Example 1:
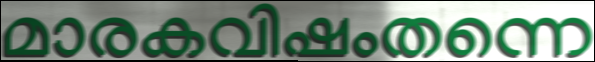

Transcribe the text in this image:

മാരകവിഷംതന്നെ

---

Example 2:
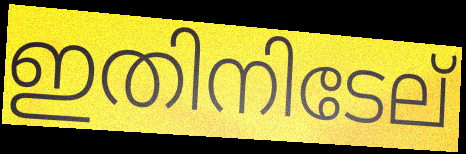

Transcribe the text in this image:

ഇതിനിടേല്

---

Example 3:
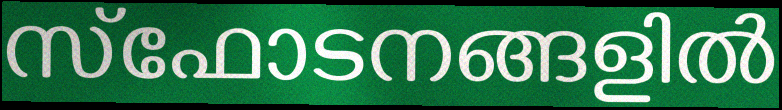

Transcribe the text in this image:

സ്ഫോടനങ്ങളിൽ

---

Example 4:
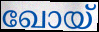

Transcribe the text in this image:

ഖോയ്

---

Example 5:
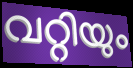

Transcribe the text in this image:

വറ്റിയും